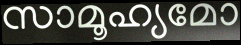
സാമൂഹ്യമോ